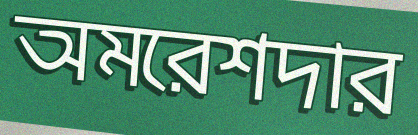
অমরেশদার